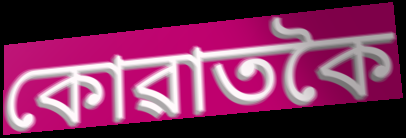
কোৱাতকৈ